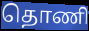
தொணி